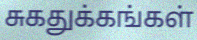
சுகதுக்கங்கள்